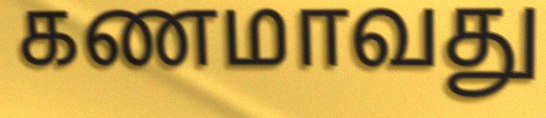
கணமாவது